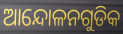
ଆନ୍ଦୋଳନଗୁଡିକ